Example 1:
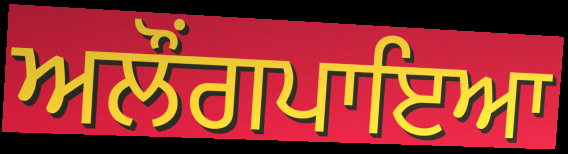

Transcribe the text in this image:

ਅਲੌਂਗਪਾਇਆ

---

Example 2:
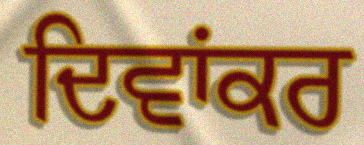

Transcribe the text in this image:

ਦਿਵਾਂਕਰ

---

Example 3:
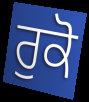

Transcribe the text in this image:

ਰੁਕੋ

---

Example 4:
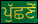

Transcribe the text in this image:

ਪੁੱਛਣੋਂ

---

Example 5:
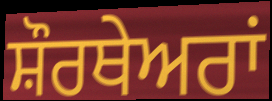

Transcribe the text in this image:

ਸ਼ੌਰਥੇਅਰਾਂ